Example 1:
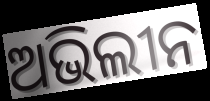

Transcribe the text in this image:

ଅଭିଲୀନ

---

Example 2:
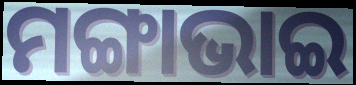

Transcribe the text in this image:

ମଙ୍ଗାଭାଇ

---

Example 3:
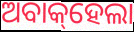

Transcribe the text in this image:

ଅବାକ୍‌ହେଲା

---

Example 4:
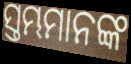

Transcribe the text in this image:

ସ୍ତମ୍ଭମାନଙ୍କ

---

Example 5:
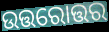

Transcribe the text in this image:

ଉତ୍ତରୋତ୍ତର